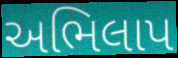
અભિલાપ